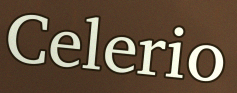
Celerio